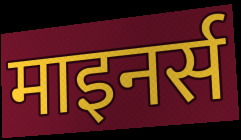
माइनर्स